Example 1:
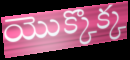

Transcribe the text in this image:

యొక్కొక్క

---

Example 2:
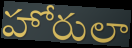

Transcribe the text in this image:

హోరులా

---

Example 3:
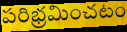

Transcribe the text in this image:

పరిభ్రమించటం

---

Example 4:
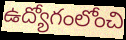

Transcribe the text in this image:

ఉద్యోగంలోంచి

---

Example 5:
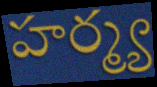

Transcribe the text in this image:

హర్మ్య